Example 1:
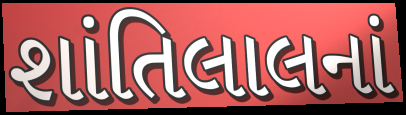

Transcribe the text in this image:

શાંતિલાલનાં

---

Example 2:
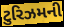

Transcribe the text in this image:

ટુરિઝમની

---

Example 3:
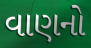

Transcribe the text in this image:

વાણનો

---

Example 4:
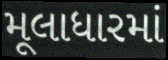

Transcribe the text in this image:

મૂલાધારમાં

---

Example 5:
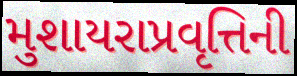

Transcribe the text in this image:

મુશાયરાપ્રવૃત્તિની